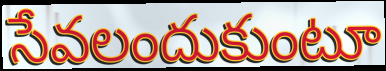
సేవలందుకుంటూ